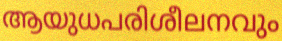
ആയുധപരിശീലനവും